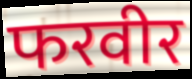
फरवीर